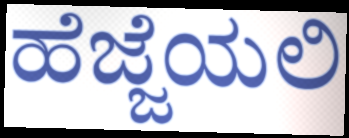
ಹೆಜ್ಜೆಯಲಿ